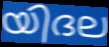
യിദല